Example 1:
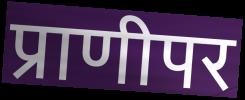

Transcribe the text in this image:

प्राणीपर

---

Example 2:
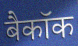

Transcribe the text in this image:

बैकॉक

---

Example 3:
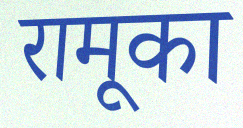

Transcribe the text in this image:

रामूका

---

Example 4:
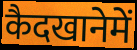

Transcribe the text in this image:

कैदखानेमें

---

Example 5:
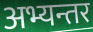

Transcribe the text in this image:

अभ्यन्तर